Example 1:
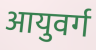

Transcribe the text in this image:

आयुवर्ग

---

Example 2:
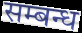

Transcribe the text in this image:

सम्बन्ध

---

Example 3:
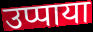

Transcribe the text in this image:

उप्पाया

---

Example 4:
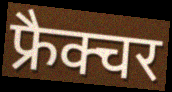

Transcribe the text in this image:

फ्रैक्चर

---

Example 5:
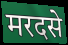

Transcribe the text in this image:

मरदसे